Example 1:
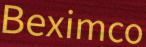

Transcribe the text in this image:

Beximco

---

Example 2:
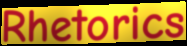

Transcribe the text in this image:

Rhetorics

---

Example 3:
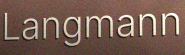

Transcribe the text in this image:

Langmann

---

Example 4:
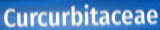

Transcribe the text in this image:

Curcurbitaceae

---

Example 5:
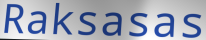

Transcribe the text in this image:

Raksasas